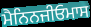
ਮੈਨਿਨਜੀਓਮਾਸ